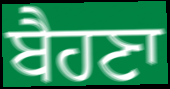
ਬੈਹਣਾ